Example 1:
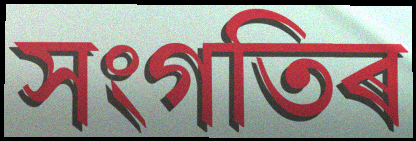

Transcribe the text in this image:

সংগতিৰ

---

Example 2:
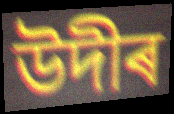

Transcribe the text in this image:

উদীৰ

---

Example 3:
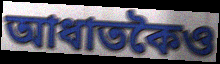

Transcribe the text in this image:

আধাতকৈও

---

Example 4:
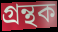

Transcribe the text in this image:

গ্ৰন্থক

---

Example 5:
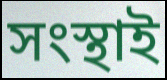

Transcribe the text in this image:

সংস্থাই